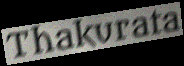
Thakurata